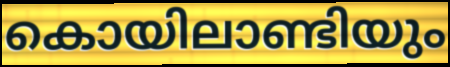
കൊയിലാണ്ടിയും